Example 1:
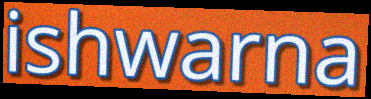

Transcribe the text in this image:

ishwarna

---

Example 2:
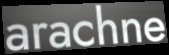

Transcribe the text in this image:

arachne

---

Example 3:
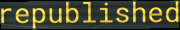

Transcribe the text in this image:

republished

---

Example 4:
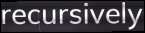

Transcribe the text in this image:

recursively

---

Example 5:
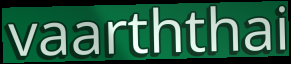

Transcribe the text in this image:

vaarththai